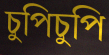
চুপিচুপি